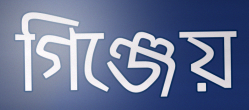
গিঞ্জেয়